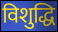
विशुद्धि